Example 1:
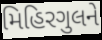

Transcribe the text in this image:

મિહિરગુલને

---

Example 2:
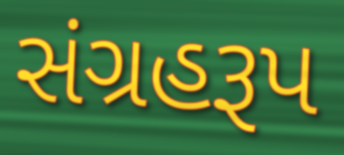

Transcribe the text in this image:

સંગ્રહરૂપ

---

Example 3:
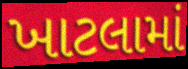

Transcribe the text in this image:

ખાટલામાં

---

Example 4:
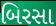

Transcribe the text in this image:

બિરસા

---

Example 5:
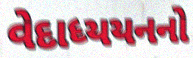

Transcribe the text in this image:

વેદાધ્યયનનો